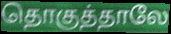
தொகுத்தாலே